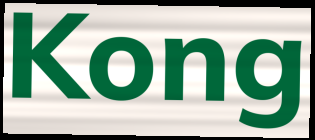
Kong